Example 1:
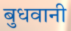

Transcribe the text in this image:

बुधवानी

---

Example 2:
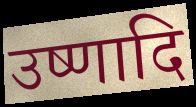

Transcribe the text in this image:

उष्णादि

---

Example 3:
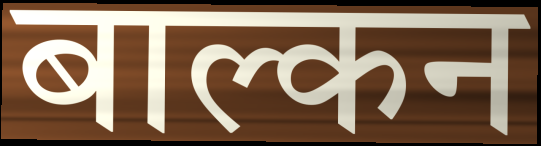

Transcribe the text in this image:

बाल्कन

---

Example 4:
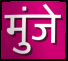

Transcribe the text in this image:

मुंजे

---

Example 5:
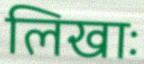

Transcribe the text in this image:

लिखाः